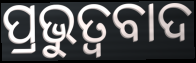
ପ୍ରଭୁତ୍ବବାଦ